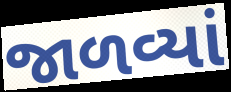
જાળવ્યાં